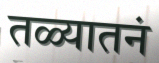
तळ्यातनं